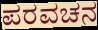
ಪರವಚನ